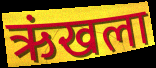
ऋंखला